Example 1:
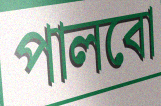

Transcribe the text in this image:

পালবো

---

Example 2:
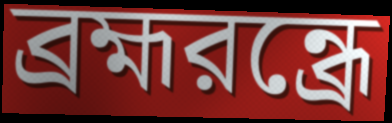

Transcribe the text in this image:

ব্রহ্মরন্ধ্রে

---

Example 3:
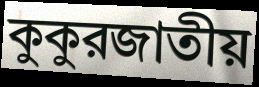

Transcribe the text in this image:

কুকুরজাতীয়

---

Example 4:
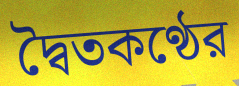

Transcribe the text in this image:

দ্বৈতকণ্ঠের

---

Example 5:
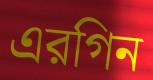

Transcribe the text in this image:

এরগিন